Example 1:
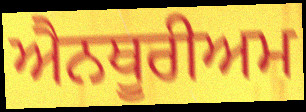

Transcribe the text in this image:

ਐਨਥੂਰੀਅਮ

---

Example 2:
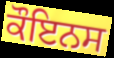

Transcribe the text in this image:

ਕੌਇਨਸ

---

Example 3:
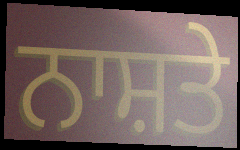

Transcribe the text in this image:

ਨਾਸ਼ਤੇ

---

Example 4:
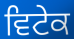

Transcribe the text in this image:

ਵਿਟੇਕ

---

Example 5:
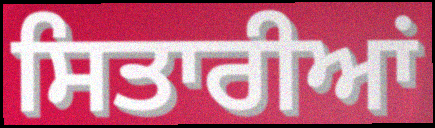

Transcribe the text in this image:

ਸਿਤਾਰੀਆਂ